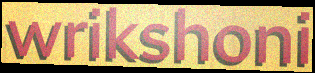
wrikshoni